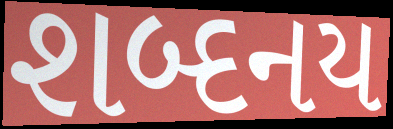
શબ્દનય